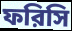
ফরিসি